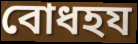
বোধহয